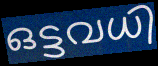
ഒട്ടവധി